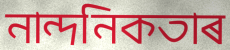
নান্দনিকতাৰ